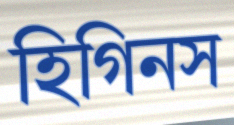
হিগিনস